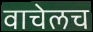
वाचेलच